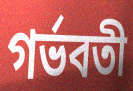
গর্ভবতী